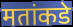
मतांकडे